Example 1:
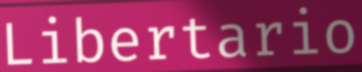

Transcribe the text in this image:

Libertario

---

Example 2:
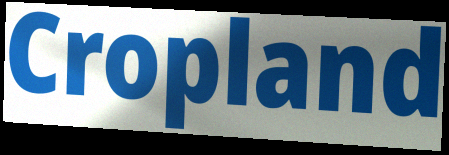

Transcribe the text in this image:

Cropland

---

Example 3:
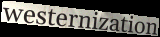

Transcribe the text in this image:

westernization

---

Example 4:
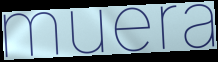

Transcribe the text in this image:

muera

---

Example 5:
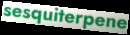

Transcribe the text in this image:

sesquiterpene